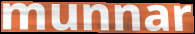
munnar